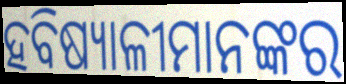
ହବିଷ୍ୟାଳୀମାନଙ୍କର